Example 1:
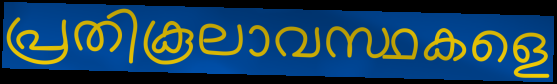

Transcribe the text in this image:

പ്രതികൂലാവസ്ഥകളെ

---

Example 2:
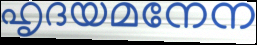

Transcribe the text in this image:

ഹൃദയമനേന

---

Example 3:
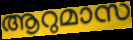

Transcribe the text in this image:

ആറുമാസ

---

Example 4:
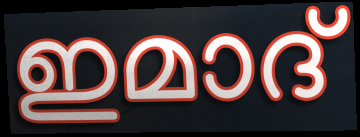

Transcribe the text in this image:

ഇമാദ്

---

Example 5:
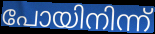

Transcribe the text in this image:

പോയിനിന്ന്